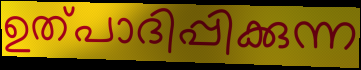
ഉത്പാദിപ്പിക്കുന്ന